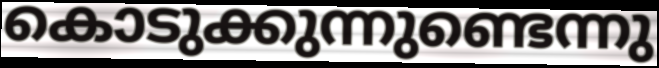
കൊടുക്കുന്നുണ്ടെന്നു